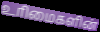
உரிமைகளின்